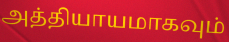
அத்தியாயமாகவும்